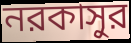
নরকাসুর